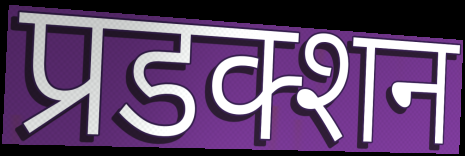
प्रडक्शन